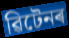
ৱিটেনৰ